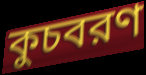
কুচবরণ